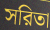
সরিতা